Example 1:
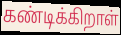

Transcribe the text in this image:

கண்டிக்கிறாள்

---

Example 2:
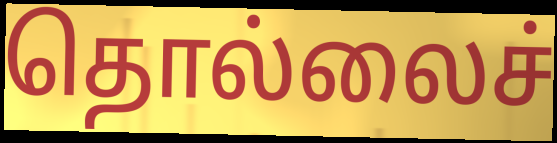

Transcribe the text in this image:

தொல்லைச்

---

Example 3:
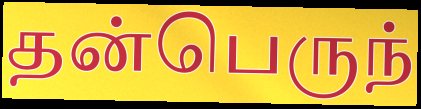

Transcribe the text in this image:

தன்பெருந்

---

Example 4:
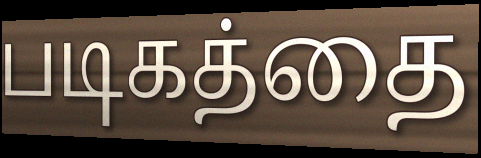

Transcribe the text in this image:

படிகத்தை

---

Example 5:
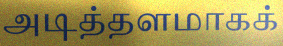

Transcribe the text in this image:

அடித்தளமாகக்